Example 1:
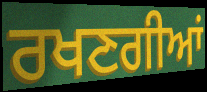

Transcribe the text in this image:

ਰਖਣਗੀਆਂ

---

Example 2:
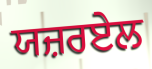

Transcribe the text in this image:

ਯਜ਼ਰਏਲ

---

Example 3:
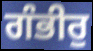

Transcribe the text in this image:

ਗੰਭੀਰੁ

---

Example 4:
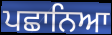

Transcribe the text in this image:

ਪਛਾਨਿਆ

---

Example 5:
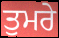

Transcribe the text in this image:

ਤੁਮਰੇ